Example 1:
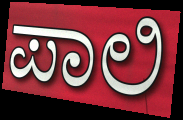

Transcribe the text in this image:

ಪಾಲಿ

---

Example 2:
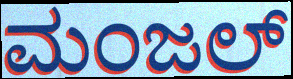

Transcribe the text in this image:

ಮಂಜಲ್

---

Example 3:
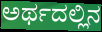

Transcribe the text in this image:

ಅರ್ಥದಲ್ಲಿನ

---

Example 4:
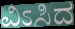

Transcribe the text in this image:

ವಿಽಸಿದ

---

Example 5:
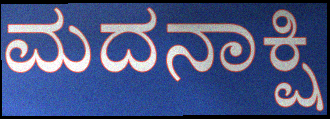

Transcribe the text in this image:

ಮದನಾಕ್ಷಿ